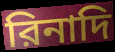
রিনাদি